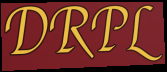
DRPL